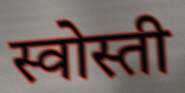
स्वोस्ती